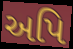
અપિ